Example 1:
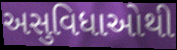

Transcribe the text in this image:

અસુવિધાઓથી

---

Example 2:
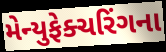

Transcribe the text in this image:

મેન્યુફેક્ચરિંગના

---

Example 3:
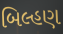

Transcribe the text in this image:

બિલ્હણ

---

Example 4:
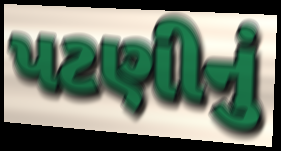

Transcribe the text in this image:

પટણીનું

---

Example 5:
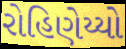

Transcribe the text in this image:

રોહિણેય્યો